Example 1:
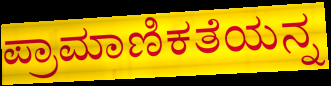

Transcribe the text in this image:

ಪ್ರಾಮಾಣಿಕತೆಯನ್ನ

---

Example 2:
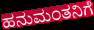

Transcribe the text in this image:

ಹನುಮಂತನಿಗೆ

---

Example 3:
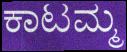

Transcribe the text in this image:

ಕಾಟಮ್ಮ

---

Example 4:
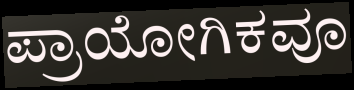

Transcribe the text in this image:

ಪ್ರಾಯೋಗಿಕವೂ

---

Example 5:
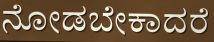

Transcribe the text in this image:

ನೋಡಬೇಕಾದರೆ